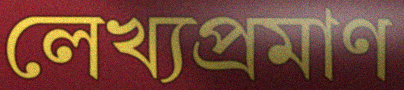
লেখ্যপ্রমাণ